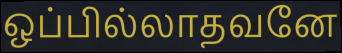
ஒப்பில்லாதவனே